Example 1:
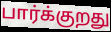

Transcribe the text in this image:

பார்க்குறது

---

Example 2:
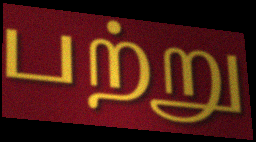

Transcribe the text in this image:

பற்று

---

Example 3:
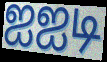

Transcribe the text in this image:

ஐஐடி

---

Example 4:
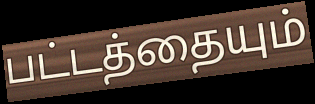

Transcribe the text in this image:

பட்டத்தையும்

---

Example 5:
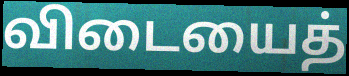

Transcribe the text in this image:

விடையைத்